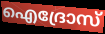
ഐദ്രോസ്